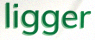
ligger